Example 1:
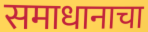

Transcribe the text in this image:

समाधानाचा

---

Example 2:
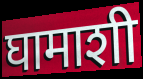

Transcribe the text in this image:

घामाशी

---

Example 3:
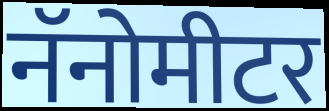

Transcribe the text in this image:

नॅनोमीटर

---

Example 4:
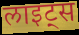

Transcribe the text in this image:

लाइट्स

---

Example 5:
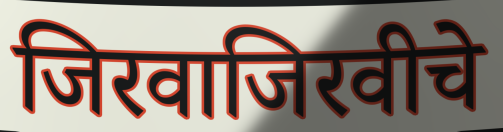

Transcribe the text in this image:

जिरवाजिरवीचे